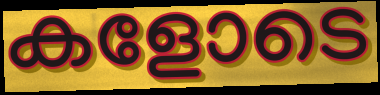
കളോടെ